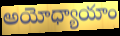
అయోధ్యాయాం